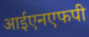
आईएनएफपी